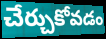
చేర్చుకోవడం